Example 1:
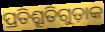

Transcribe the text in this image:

ପ୍ରତିଶ୍ରୂତିଗୁଡ଼ାକ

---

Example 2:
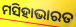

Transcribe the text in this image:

ମସିହାଭାରତ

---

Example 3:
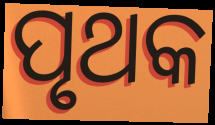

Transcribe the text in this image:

ପୃଥକ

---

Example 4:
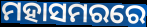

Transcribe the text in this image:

ମହାସମରରେ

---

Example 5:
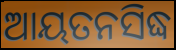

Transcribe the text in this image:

ଆୟତନସିଦ୍ଧ